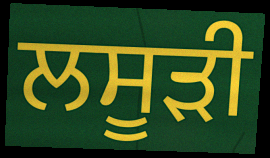
ਲਸੂੜੀ